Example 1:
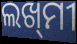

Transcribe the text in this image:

ଲଖ୍‌ମୀ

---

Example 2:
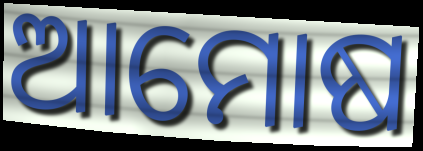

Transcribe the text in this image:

ଆମୋଷ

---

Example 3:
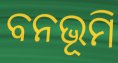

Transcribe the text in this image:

ବନଭୂମି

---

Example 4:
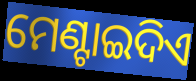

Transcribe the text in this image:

ମେଣ୍ଟାଇଦିଏ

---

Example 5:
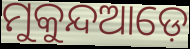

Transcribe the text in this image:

ମୁକୁନ୍ଦଆଡ଼େ